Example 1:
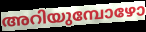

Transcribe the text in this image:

അറിയുമ്പോഴോ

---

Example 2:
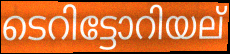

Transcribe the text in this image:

ടെറിട്ടോറിയല്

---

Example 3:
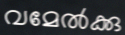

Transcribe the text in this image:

വമേൽക്കു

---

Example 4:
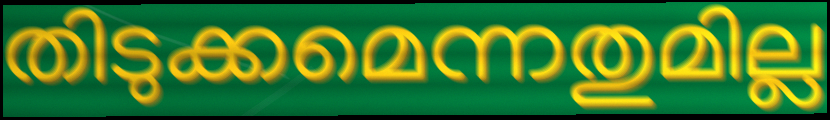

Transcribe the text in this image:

തിടുക്കമെന്നതുമില്ല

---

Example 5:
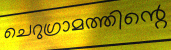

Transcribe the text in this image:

ചെറുഗ്രാമത്തിന്റെ